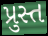
પ્રુસ્ત